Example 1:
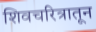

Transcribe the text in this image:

शिवचरित्रातून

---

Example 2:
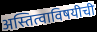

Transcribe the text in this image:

अस्तित्वाविषयीची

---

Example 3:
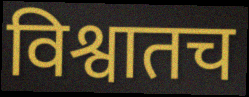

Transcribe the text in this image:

विश्वातच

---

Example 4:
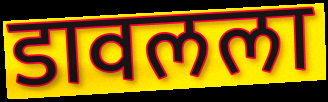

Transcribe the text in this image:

डावलला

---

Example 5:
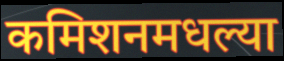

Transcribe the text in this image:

कमिशनमधल्या